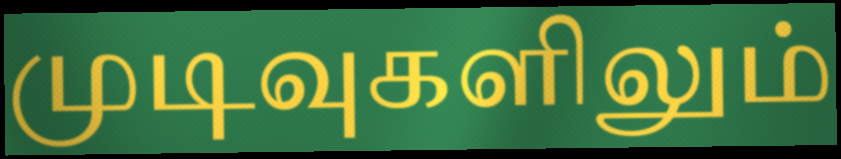
முடிவுகளிலும்